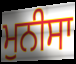
ਮੁਨੀਸਾ